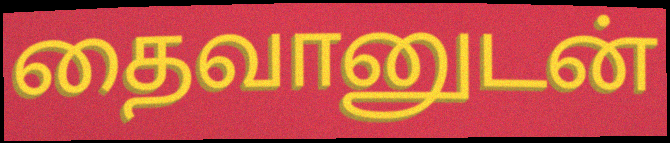
தைவானுடன்